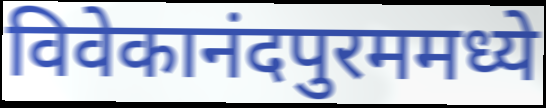
विवेकानंदपुरममध्ये